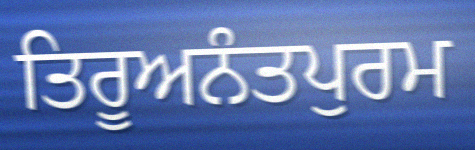
ਤਿਰੂਅਨੰਤਪੁਰਮ